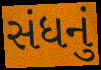
સંધનું